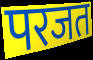
परजत